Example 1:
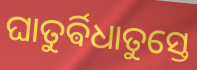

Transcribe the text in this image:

ଘାତୁର୍ଵିଧାତୁସ୍ତେ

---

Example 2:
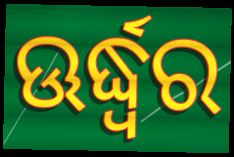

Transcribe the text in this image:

ଊର୍ଦ୍ଧ୍ଵର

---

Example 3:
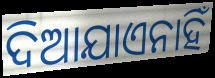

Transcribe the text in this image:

ଦିଆଯାଏନାହିଁ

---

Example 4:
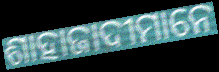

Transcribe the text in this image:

ଶାହାଜାଦୀମାନେ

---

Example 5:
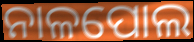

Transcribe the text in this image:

ନାଳପୋଲ